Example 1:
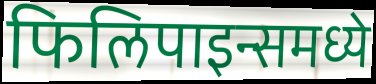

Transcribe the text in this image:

फिलिपाइन्समध्ये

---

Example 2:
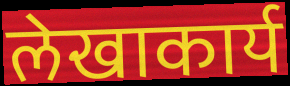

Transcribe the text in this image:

लेखाकार्य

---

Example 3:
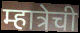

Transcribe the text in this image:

म्हात्रेची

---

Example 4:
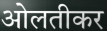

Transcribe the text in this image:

ओलतीकर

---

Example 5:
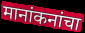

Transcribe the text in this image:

मानांकनांचा